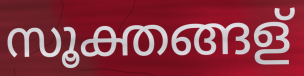
സൂക്തങ്ങള്